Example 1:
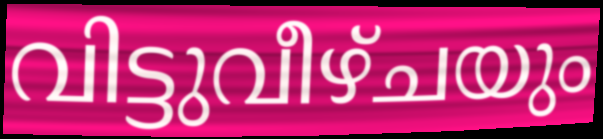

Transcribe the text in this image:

വിട്ടുവീഴ്ചയും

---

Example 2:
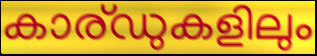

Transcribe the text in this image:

കാര്ഡുകളിലും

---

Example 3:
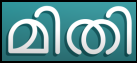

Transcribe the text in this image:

മിതി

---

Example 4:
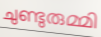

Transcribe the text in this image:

ചുണ്ടുരുമ്മി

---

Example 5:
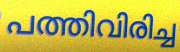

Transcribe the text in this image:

പത്തിവിരിച്ച